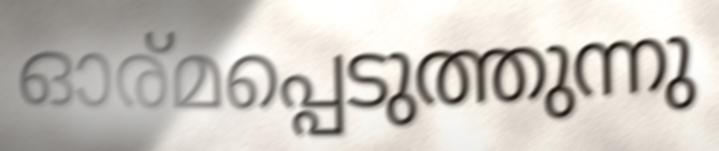
ഓര്മപ്പെടുത്തുന്നു